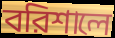
বরিশালে